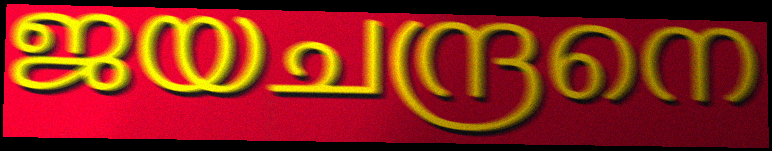
ജയചന്ദ്രനെ